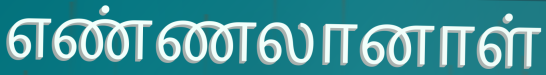
எண்ணலானாள்